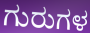
ಗುರುಗಳ